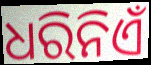
ଧରିନିଏଁ